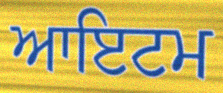
ਆਇਟਮ